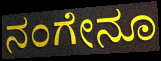
ನಂಗೇನೂ